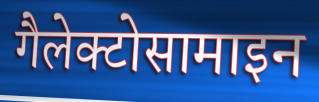
गैलेक्टोसामाइन